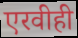
एरवीही